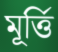
মূর্ত্তি